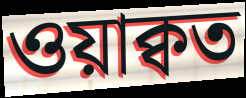
ওয়াক্বত